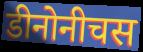
डीनोनीचस